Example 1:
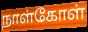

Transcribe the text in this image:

நாள்கோள்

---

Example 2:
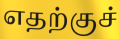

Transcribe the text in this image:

எதற்குச்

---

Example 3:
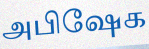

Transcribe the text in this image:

அபிஷேக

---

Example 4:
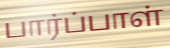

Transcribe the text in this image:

பார்ப்பாள்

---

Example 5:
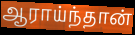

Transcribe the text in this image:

ஆராய்ந்தான்